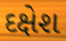
દક્ષેશ